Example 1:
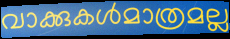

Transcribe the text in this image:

വാക്കുകൾമാത്രമല്ല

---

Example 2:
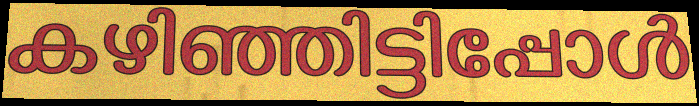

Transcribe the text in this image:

കഴിഞ്ഞിട്ടിപ്പോൾ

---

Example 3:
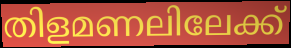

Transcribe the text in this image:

തിളമണലിലേക്ക്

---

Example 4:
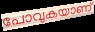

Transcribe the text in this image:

പോവുകയാണ്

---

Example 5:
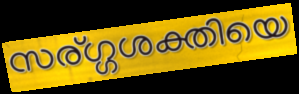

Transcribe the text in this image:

സര്ഗ്ഗശക്തിയെ